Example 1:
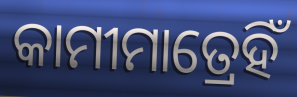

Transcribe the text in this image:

କାମୀମାତ୍ରେହିଁ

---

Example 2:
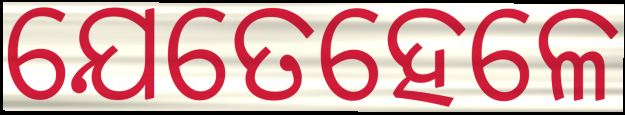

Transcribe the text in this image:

ଯେତେହେଳେ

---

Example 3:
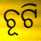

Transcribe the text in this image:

ଚୂଟି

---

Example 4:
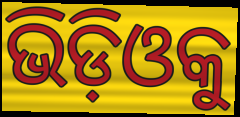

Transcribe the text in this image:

ଭିଡ଼ିଓକୁ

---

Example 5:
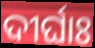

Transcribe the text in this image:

ଦୀର୍ଘାଃ